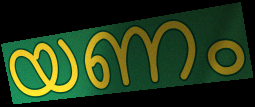
യണം